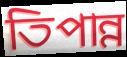
তিপান্ন